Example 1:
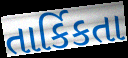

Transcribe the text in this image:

તાર્કિકતા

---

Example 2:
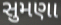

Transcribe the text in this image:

સુમણા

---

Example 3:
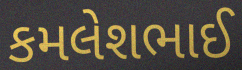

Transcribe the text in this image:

કમલેશભાઈ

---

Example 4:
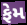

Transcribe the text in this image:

ફેમ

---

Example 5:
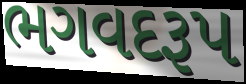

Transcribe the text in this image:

ભગવદરૂપ